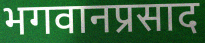
भगवानप्रसाद